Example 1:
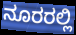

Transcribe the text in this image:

ನೂರರಲ್ಲಿ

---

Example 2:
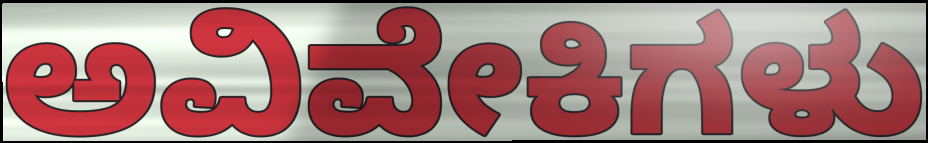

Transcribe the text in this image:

ಅವಿವೇಕಿಗಳು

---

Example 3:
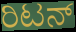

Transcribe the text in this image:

ರಿಟನ್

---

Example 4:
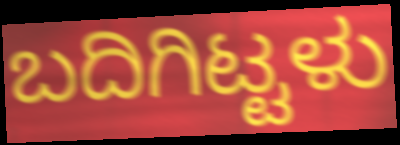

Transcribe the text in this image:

ಬದಿಗಿಟ್ಟಳು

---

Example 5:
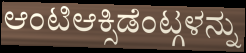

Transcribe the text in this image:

ಆಂಟಿಆಕ್ಸಿಡೆಂಟ್ಗಳನ್ನು